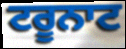
ਟਰੂਨਾਟ